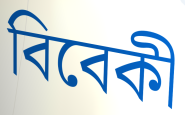
বিবেকী